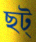
ছট্